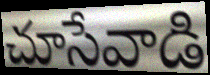
చూసేవాడి